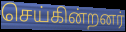
செய்கின்றனர்